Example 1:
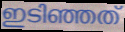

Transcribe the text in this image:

ഇടിഞ്ഞത്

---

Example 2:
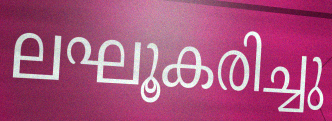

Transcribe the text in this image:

ലഘൂകരിച്ചു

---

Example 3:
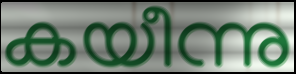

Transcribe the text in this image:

കയീന്നു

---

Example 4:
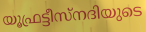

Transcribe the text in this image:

യൂഫ്രട്ടീസ്നദിയുടെ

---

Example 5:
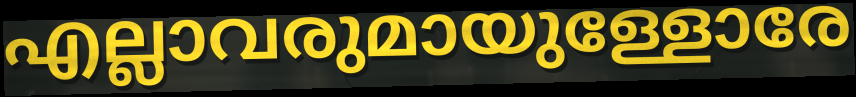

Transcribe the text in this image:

എല്ലാവരുമായുള്ളോരേ